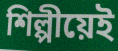
শিল্পীয়েই